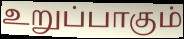
உறுப்பாகும்